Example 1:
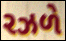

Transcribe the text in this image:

રઝળે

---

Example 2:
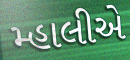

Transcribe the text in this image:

મ્હાલીએ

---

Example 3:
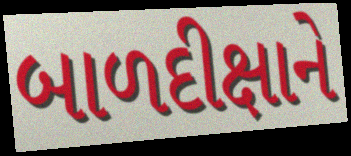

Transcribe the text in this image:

બાળદીક્ષાને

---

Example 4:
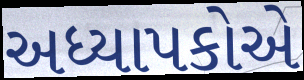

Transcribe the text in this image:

અધ્યાપકોએ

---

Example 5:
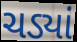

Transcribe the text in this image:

ચડ્યાં